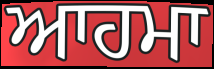
ਆਹਮਾ